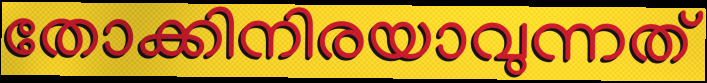
തോക്കിനിരയാവുന്നത്